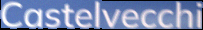
Castelvecchi